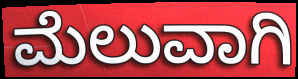
ಮೆಲುವಾಗಿ